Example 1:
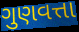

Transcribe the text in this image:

ગુણવત્તા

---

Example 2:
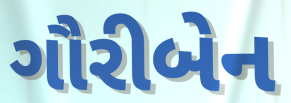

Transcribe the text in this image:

ગૌરીબેન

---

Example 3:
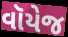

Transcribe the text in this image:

વૉયેજ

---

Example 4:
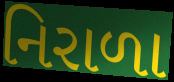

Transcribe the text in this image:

નિરાળા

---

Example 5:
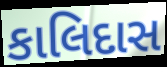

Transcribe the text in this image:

કાલિદાસ